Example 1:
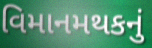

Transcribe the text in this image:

વિમાનમથકનું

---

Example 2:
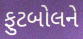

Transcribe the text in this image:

ફુટબોલને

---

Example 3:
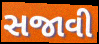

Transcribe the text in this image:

સજાવી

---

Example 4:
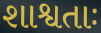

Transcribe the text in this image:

શાશ્વતાઃ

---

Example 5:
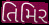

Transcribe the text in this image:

તિમિર